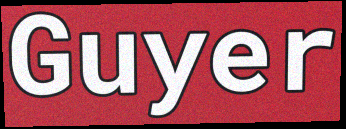
Guyer